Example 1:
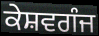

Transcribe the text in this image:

ਕੇਸ਼ਵਗੰਜ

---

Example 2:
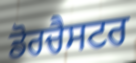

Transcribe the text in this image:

ਡੋਰਚੈਸਟਰ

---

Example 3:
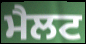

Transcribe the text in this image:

ਮੈਲਟ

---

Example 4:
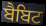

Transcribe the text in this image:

ਬੈਬਿਟ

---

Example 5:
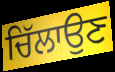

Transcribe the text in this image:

ਚਿੱਲਾਉਣ